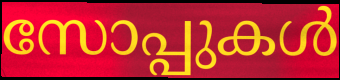
സോപ്പുകൾ